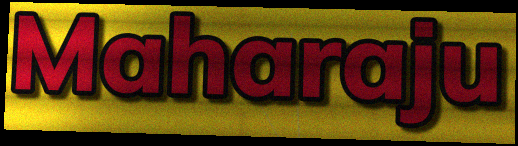
Maharaju